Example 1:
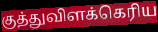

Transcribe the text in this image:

குத்துவிளக்கெரிய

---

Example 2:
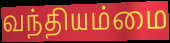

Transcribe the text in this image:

வந்தியம்மை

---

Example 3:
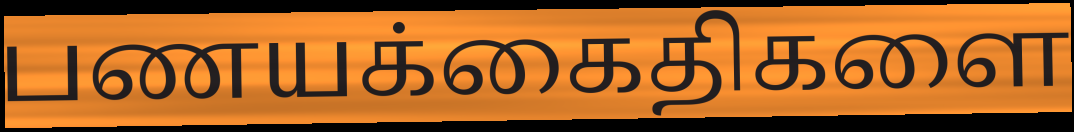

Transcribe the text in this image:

பணயக்கைதிகளை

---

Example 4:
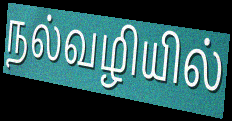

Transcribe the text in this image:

நல்வழியில்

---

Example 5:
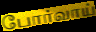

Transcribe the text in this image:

போர்வாய்